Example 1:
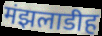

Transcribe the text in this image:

मंझलाडीह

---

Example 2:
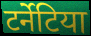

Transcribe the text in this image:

टर्नेटिया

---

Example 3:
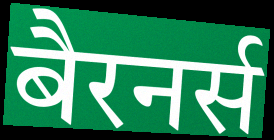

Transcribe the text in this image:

बैरनर्स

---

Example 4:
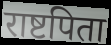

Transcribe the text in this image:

राष्टपिता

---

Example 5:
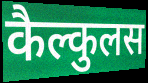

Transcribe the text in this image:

कैल्कुलस